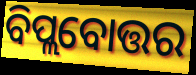
ବିପ୍ଲବୋତ୍ତର